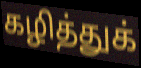
கழித்துக்